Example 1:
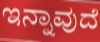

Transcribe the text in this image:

ಇನ್ನಾವುದೆ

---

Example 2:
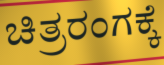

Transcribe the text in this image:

ಚಿತ್ರರಂಗಕ್ಕೆ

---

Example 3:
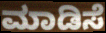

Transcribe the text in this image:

ಮಾಡಿಸೆ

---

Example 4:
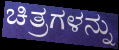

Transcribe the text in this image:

ಚಿತ್ರಗಳನ್ನು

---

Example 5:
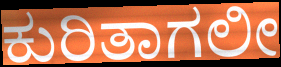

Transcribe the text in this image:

ಕುರಿತಾಗಲೀ